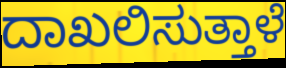
ದಾಖಲಿಸುತ್ತಾಳೆ